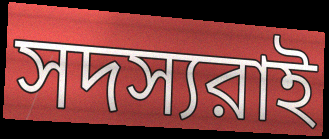
সদস্যরাই